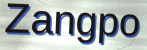
Zangpo